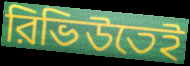
রিভিউতেই